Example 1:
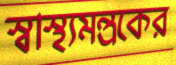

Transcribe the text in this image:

স্বাস্থ্যমন্ত্রকের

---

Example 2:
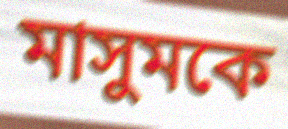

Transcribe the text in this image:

মাসুমকে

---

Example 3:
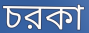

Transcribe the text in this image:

চরকা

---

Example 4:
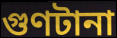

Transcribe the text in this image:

গুণটানা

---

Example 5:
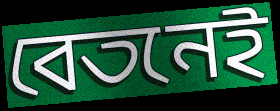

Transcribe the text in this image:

বেতনেই